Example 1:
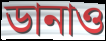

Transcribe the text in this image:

ডানাও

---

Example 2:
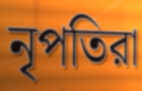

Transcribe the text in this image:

নৃপতিরা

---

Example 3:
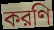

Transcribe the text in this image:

করণি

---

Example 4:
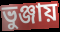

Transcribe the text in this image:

ভুঞ্জায়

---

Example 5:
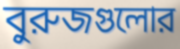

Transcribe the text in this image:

বুরুজগুলোর